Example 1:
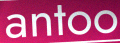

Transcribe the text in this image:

antoo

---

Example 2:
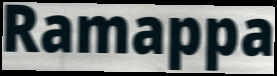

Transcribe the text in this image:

Ramappa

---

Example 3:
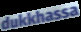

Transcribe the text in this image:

dukkhassa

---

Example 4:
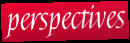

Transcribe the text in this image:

perspectives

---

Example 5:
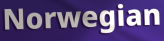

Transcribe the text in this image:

Norwegian